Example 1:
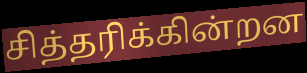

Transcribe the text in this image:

சித்தரிக்கின்றன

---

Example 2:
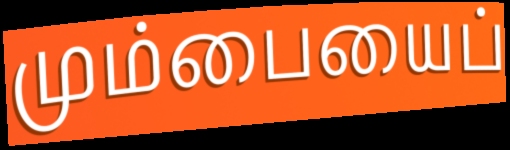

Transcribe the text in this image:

மும்பையைப்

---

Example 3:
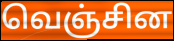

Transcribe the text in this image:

வெஞ்சின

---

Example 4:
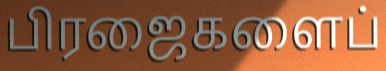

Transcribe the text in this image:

பிரஜைகளைப்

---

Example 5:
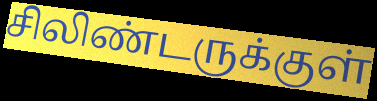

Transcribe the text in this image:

சிலிண்டருக்குள்